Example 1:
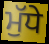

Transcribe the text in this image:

ਮੁੱਧੇ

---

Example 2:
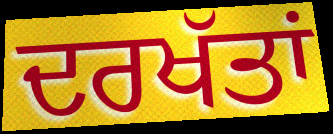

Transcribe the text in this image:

ਦਰਖੱਤਾਂ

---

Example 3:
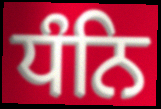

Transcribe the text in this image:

ਧੰਨਿ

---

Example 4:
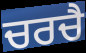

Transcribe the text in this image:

ਚਰਚੈ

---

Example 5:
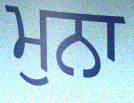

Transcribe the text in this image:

ਮੁਨਾ